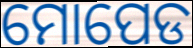
ମୋପେଡ